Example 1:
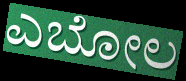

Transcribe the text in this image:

ಎಬೋಲ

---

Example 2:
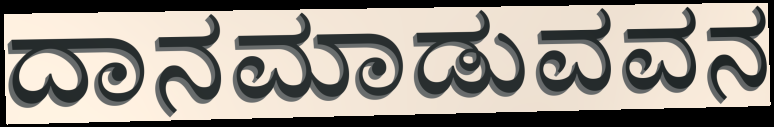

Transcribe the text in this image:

ದಾನಮಾಡುವವನ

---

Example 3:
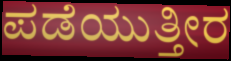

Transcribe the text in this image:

ಪಡೆಯುತ್ತೀರ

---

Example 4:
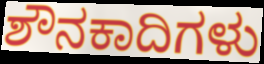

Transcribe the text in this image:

ಶೌನಕಾದಿಗಳು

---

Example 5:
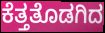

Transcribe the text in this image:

ಕೆತ್ತತೊಡಗಿದ